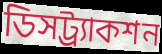
ডিসট্র্যাকশন